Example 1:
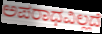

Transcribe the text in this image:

ಅಪರಾಧವಿಲ್ಲದೆ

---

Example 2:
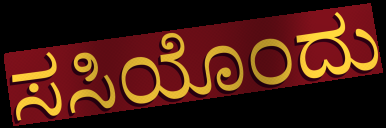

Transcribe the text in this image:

ಸಸಿಯೊಂದು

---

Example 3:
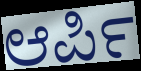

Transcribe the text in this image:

ಆರ್ಪಿ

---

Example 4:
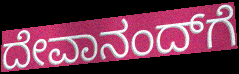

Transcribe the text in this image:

ದೇವಾನಂದ್‌ಗೆ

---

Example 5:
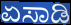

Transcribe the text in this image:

ಏಸಾಡಿ